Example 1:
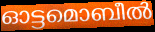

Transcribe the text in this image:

ഓട്ടമൊബീൽ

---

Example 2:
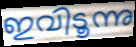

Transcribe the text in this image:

ഇവിടൂന്നു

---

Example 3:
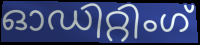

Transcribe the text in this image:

ഓഡിറ്റിംഗ്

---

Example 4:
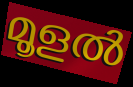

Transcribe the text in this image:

മൂളൽ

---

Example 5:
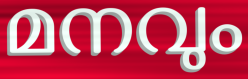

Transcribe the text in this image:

മനവും